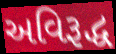
અવિરૂદ્ધ